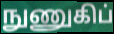
நுணுகிப்